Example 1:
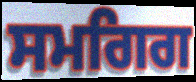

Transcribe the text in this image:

ਸਮਗਿਗ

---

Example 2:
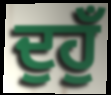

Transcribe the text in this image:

ਦੁਹੁਁ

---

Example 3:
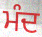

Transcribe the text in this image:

ਮੰਦ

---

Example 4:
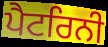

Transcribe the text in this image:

ਪੈਟਰਿਨੀ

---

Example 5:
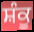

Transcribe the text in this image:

ਸ਼ੰਕੂ